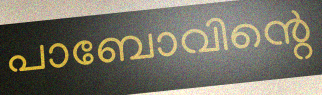
പാബോവിന്റെ